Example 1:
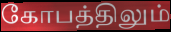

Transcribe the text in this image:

கோபத்திலும்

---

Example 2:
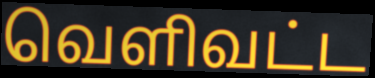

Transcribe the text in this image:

வெளிவட்ட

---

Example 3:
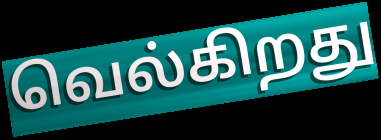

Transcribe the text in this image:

வெல்கிறது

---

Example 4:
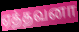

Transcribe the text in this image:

ஏத்தவனா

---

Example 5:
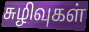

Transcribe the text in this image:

சுழிவுகள்